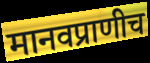
मानवप्राणीच